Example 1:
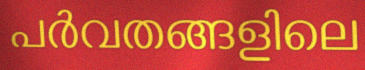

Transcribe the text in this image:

പർവതങ്ങളിലെ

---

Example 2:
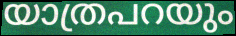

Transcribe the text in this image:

യാത്രപറയും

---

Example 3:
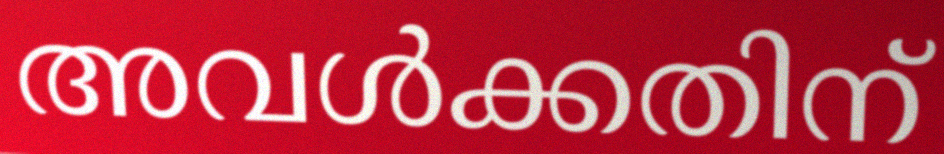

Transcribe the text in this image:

അവൾക്കതിന്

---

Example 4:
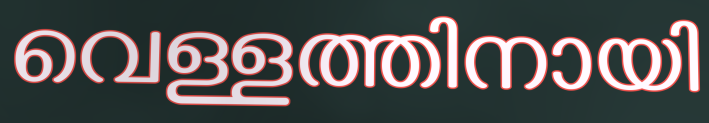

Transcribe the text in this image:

വെള്ളത്തിനായി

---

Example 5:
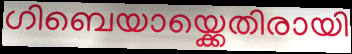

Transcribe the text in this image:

ഗിബെയായ്ക്കെതിരായി